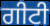
ਗੀਟੀ